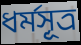
ধর্মসূত্র